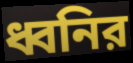
ধ্বনির